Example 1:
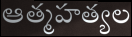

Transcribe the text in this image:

ఆత్మహత్యల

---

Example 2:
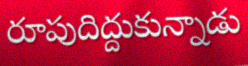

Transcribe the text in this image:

రూపుదిద్దుకున్నాడు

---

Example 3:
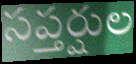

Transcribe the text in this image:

సప్తర్షుల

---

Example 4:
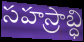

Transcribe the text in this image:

సహస్రాబ్ధి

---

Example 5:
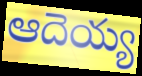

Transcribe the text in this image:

ఆదెయ్య